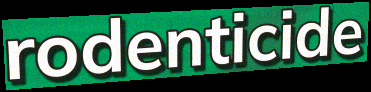
rodenticide